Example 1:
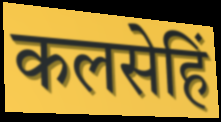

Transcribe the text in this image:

कलसेहिं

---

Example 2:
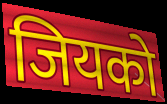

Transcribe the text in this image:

जियको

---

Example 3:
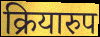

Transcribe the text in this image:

क्रियारुप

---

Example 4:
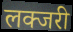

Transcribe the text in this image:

लक्जरी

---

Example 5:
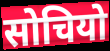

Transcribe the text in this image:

सोचियो